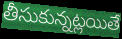
తీసుకున్నట్లయితే